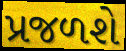
પ્રજળશે